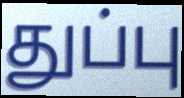
துப்பு